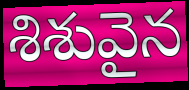
శిశువైన